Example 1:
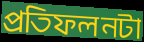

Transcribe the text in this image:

প্রতিফলনটা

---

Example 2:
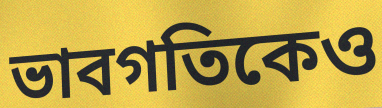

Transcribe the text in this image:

ভাবগতিকেও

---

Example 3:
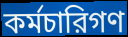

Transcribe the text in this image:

কর্মচারিগণ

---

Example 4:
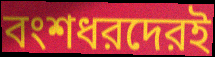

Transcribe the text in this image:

বংশধরদেরই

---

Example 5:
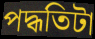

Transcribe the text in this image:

পদ্ধতিটা